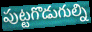
పుట్టగొడుగుల్ని